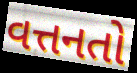
વત્તનતો